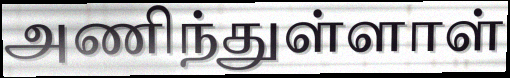
அணிந்துள்ளாள்